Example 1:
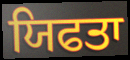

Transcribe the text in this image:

ਯਿਫਤਾ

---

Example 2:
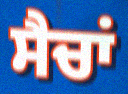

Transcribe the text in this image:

ਸੈਚਾਂ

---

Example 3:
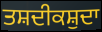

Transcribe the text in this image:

ਤਸ਼ਦੀਕਸ਼ੁਦਾ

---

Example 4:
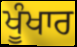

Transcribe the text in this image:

ਖੂੰਖਾਰ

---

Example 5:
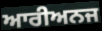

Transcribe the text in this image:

ਆਰੀਅਨਜ